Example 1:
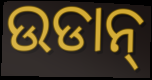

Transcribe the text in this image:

ଉଡାନ୍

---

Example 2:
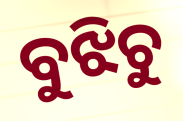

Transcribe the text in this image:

ବୁଝିଚୁ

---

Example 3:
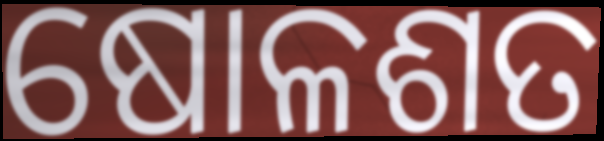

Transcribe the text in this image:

ଷୋଳଶତ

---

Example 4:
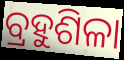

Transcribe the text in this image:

ବ୍ରହୁଶିଳା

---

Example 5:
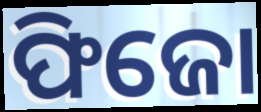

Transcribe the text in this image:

ଫିଜୋ